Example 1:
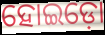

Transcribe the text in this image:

ହୋଇଡ଼ୋ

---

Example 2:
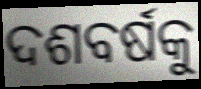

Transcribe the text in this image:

ଦଶବର୍ଷକୁ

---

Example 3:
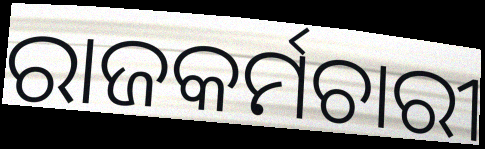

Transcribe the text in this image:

ରାଜକର୍ମଚାରୀ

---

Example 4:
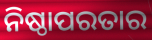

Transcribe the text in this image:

ନିଷ୍ଠାପରତାର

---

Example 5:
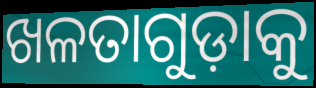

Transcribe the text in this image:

ଖଳତାଗୁଡ଼ାକୁ